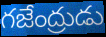
గజేంద్రుడు